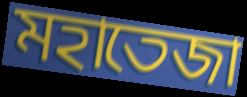
মহাতেজা